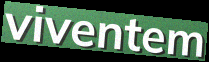
viventem